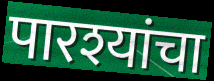
पारश्यांचा